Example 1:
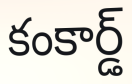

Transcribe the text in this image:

కంకార్డ్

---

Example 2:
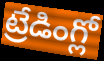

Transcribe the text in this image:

ట్రేడింగ్లో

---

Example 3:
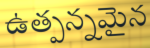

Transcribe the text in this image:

ఉత్పన్నమైన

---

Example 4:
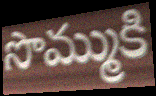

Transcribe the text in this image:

సొమ్ముకి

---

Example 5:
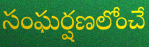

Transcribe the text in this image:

సంఘర్షణలోంచే